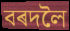
বৰদলৈ